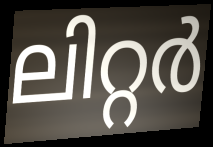
ലിറ്റർ